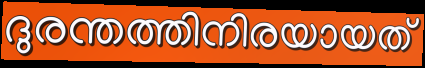
ദുരന്തത്തിനിരയായത്